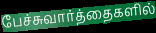
பேச்சுவார்த்தைகளில்